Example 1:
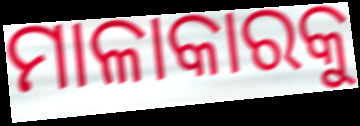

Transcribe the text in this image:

ମାଳାକାରକୁ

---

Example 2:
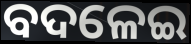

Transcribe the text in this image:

ବଦଳେଇ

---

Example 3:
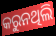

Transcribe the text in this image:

କରୁନଥିଲି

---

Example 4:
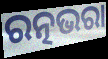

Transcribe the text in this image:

ରତ୍ନଭରା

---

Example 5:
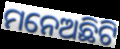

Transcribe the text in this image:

ମନେଅଛିଟି